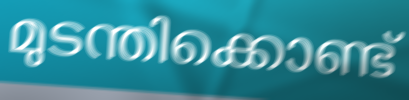
മുടന്തിക്കൊണ്ട്